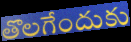
తొలగేందుకు